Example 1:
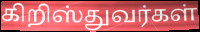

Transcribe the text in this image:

கிறிஸ்துவர்கள்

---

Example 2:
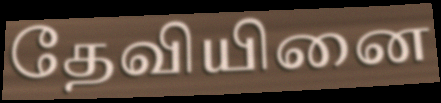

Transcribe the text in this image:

தேவியினை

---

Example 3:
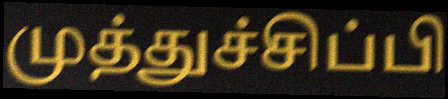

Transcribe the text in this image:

முத்துச்சிப்பி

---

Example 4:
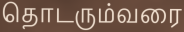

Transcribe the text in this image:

தொடரும்வரை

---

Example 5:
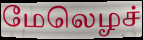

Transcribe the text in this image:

மேலெழச்